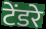
टेंडरे